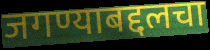
जगण्याबद्दलचा